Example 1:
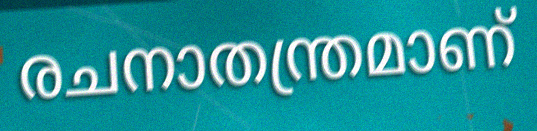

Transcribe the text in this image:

രചനാതന്ത്രമാണ്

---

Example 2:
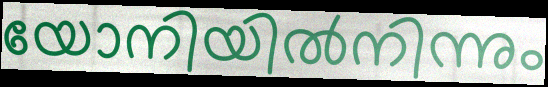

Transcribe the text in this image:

യോനിയിൽനിന്നും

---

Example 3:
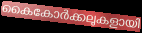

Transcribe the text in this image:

കൈകോർക്കലുകളായി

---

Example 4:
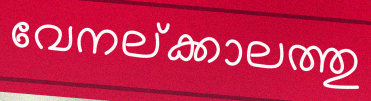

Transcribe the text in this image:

വേനല്ക്കാലത്തു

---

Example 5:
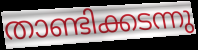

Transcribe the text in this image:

താണ്ടിക്കടന്നു